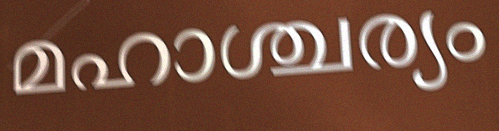
മഹാശ്ചര്യം